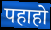
पहाहो